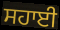
ਸਹਾਈ